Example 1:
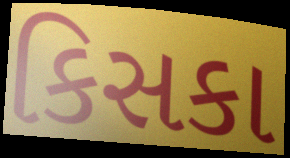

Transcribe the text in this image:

કિસકા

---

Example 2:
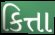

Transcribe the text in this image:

કિત્તા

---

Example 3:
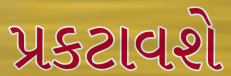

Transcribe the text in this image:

પ્રકટાવશે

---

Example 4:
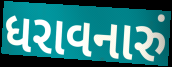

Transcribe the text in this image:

ધરાવનારું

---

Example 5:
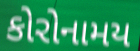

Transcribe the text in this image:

કોરોનામય